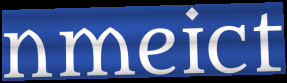
nmeict